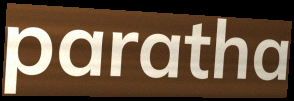
paratha